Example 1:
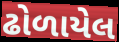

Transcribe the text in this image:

ઢોળાયેલ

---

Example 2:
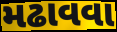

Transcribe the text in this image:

મઢાવવા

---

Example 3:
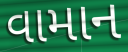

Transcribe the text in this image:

વામાન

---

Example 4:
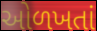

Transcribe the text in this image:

ઓળખતાં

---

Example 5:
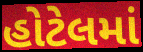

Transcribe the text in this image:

હોટેલમાં